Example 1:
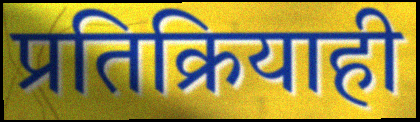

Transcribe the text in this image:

प्रतिक्रियाही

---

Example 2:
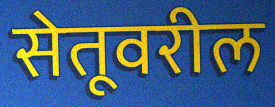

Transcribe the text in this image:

सेतूवरील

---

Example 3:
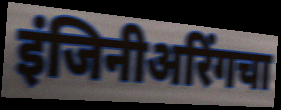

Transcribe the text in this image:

इंजिनीअरिंगचा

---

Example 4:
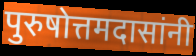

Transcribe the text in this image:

पुरुषोत्तमदासांनी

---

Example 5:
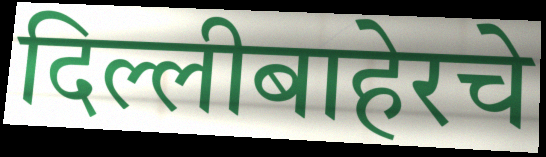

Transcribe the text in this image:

दिल्लीबाहेरचे